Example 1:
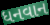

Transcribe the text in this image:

ધનવાન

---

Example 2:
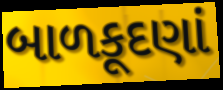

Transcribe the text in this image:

બાળકૂદણાં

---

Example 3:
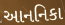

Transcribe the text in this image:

આનનિકા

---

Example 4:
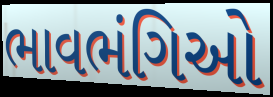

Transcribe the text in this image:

ભાવભંગિઓ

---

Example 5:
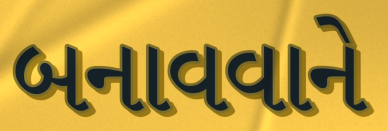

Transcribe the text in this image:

બનાવવાને